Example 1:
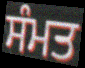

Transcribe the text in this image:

ਸੰਮਤ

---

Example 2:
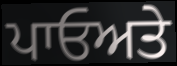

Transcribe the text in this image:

ਪਾਓਅਤੇ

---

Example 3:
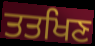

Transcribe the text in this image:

ਤਤਖਿਣ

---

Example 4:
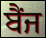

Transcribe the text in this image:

ਬੈਂਜ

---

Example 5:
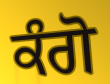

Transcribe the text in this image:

ਕੰਗੋ